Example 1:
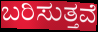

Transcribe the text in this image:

ಬರಿಸುತ್ತವೆ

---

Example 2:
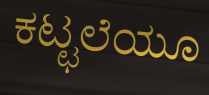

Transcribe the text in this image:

ಕಟ್ಟಲೆಯೂ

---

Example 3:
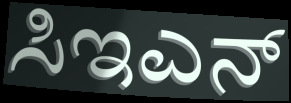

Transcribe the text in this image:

ಸಿಇಎನ್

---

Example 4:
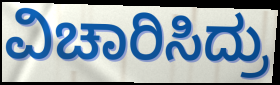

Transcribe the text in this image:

ವಿಚಾರಿಸಿದ್ರು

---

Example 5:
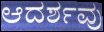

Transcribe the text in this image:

ಆದರ್ಶವು